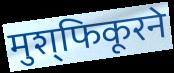
मुश्फिकूरने